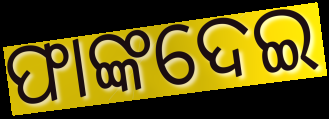
ଫାଙ୍କଦେଇ